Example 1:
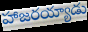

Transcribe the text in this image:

హాజరయ్యాడు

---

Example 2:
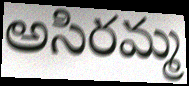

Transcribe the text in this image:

అసిరమ్మ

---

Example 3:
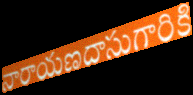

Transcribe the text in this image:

నారాయణదాసుగారికి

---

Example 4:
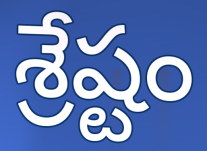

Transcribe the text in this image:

శ్రేష్టం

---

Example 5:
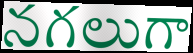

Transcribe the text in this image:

నగలుగా